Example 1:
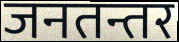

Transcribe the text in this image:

जनतन्तर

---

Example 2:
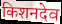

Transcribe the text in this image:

किशनदेव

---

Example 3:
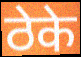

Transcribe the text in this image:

ठेके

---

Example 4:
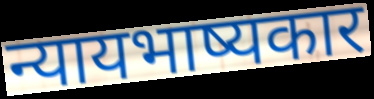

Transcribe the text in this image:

न्यायभाष्यकार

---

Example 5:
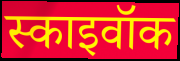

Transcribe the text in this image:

स्काइवॉक